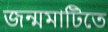
জন্মমাটিতে